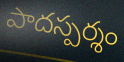
పాదస్పర్శం